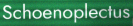
Schoenoplectus